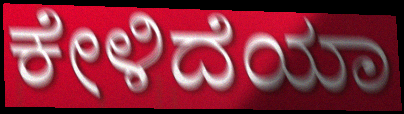
ಕೇಳಿದೆಯಾ